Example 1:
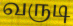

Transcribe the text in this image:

வருடி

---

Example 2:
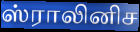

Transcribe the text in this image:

ஸ்ராலினிச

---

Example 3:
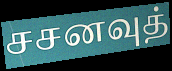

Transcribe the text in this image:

சசனவுத்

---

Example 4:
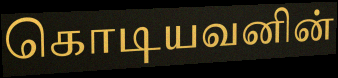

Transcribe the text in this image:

கொடியவனின்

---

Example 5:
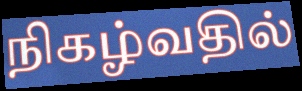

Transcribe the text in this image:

நிகழ்வதில்